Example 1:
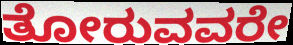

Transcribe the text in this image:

ತೋರುವವರೇ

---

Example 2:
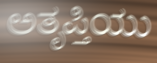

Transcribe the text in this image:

ಅತೃಪ್ತಿಯು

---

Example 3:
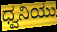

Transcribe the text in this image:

ಧ್ವನಿಯು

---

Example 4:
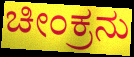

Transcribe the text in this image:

ಚೀಂಕ್ರನು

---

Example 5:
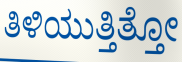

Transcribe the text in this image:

ತಿಳಿಯುತ್ತಿತ್ತೋ